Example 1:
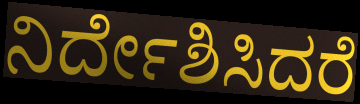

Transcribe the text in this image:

ನಿರ್ದೇಶಿಸಿದರೆ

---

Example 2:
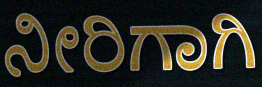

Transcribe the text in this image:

ನೀರಿಗಾಗಿ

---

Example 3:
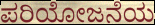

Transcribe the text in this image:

ಪರಿಯೋಜನೆಯ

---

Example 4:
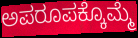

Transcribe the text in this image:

ಅಪರೂಪಕ್ಕೊಮ್ಮೆ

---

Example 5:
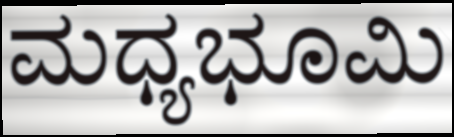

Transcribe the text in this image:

ಮಧ್ಯಭೂಮಿ